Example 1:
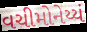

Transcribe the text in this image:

વચીમોનેય્યં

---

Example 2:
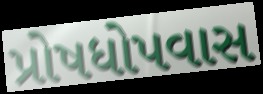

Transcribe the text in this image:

પ્રોષધોપવાસ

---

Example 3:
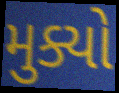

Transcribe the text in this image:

મુક્યો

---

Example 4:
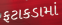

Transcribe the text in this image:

ફટાકડામાં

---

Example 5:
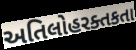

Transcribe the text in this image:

અતિલોહરક્તકતા